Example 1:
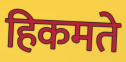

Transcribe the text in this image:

हिकमते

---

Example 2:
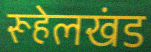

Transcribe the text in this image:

रूहेलखंड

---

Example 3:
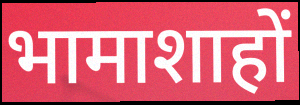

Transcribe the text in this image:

भामाशाहों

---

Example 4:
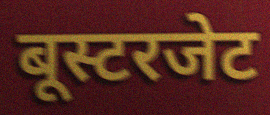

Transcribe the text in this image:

बूस्टरजेट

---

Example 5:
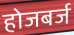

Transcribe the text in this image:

होजबर्ज